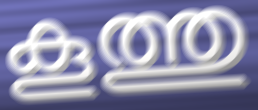
കൂത്തു